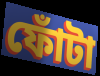
ফোঁটা